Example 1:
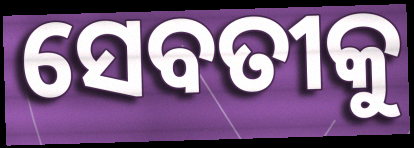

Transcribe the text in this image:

ସେବତୀକୁ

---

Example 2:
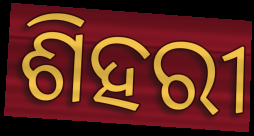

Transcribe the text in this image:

ଶିହରୀ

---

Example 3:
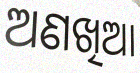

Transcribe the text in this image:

ଅଣଖିଆ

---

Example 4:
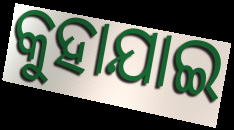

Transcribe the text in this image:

କୁହାଯାଇ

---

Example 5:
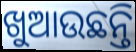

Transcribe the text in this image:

ଖୁଆଉଛନ୍ତି